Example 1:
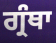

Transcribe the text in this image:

ਗ੍ਰੰਥਾ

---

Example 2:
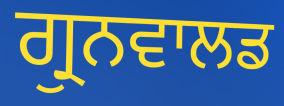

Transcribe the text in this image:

ਗ੍ਰੁਨਵਾਲਡ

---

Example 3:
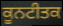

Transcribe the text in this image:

ਕੂਨਟੀਤਕ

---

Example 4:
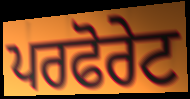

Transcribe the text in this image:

ਪਰਫੋਰੇਟ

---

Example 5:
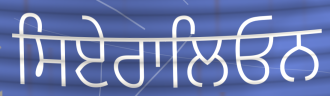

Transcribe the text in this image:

ਸਿਏਰਾਲਿਓਨ